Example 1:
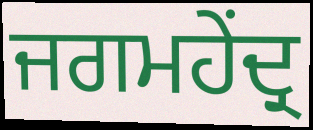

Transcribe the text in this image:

ਜਗਮਹੇਂਦ੍ਰ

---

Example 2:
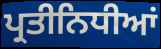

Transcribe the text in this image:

ਪ੍ਰਤੀਨਿਧੀਆਂ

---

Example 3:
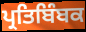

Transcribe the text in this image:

ਪ੍ਰਤਿਬਿੰਬਕ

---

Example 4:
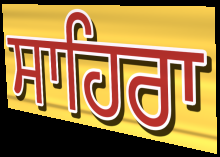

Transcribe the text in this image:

ਸਾਹਿਰਾ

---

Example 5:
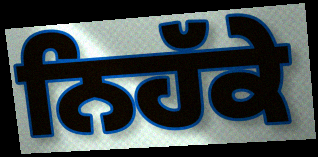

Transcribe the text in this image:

ਨਿਹੱਕੇ